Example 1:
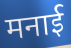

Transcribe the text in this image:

मनाई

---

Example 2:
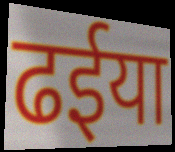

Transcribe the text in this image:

ढईया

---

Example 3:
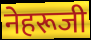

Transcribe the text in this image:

नेहरूजी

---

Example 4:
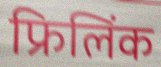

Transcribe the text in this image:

फ्रिलिंक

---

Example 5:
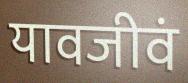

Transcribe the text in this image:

यावजीवं